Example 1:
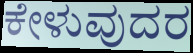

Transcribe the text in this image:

ಕೇಳುವುದರ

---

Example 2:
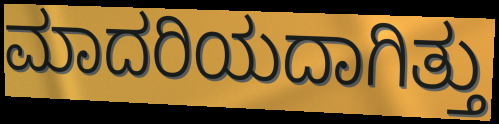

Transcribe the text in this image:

ಮಾದರಿಯದಾಗಿತ್ತು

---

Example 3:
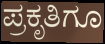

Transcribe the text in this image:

ಪ್ರಕೃತಿಗೂ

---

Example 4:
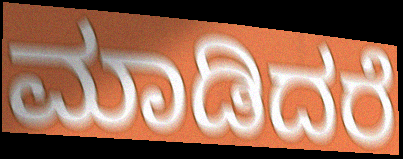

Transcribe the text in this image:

ಮಾಡಿದರೆ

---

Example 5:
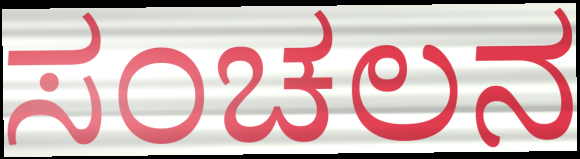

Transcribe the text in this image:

ಸಂಚಲನ